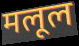
मलूल